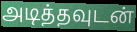
அடித்தவுடன்